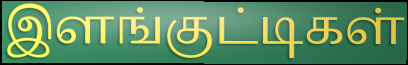
இளங்குட்டிகள்